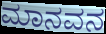
ಮಾನವನ